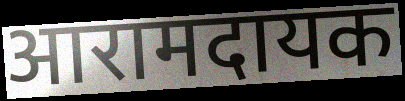
आरामदायक